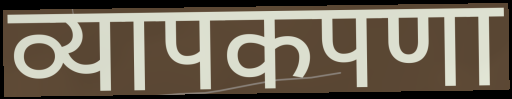
व्यापकपणा